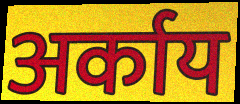
अर्काय